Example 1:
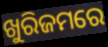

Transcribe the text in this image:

ଖୁରିଜମରେ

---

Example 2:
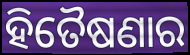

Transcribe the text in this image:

ହିତୈଷଣାର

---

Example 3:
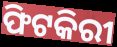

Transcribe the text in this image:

ଫିଟକିରୀ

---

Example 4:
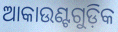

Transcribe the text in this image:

ଆକାଉଣ୍ଟଗୁଡ଼ିକ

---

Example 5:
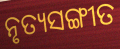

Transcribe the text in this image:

ନୃତ୍ୟସଙ୍ଗୀତ